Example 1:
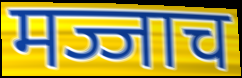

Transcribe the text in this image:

मज्जाच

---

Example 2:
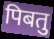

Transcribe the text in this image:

पिबतु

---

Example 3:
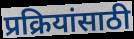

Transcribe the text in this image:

प्रक्रियांसाठी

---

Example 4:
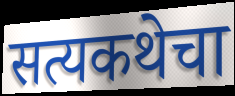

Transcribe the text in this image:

सत्यकथेचा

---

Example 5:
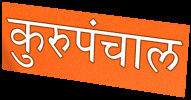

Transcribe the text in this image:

कुरुपंचाल